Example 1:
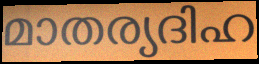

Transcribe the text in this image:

മാതര്യദിഹ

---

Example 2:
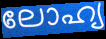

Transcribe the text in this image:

ലോഹ്യ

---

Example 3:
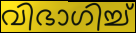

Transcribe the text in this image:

വിഭാഗിച്ച്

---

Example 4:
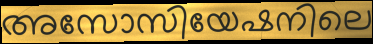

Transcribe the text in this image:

അസോസിയേഷനിലെ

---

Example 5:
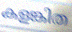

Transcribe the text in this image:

കളങ്കിത